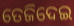
ତେଜିଦେଇ